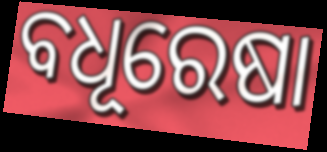
ବଧୂରେଷା